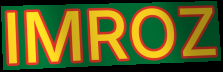
IMROZ